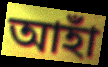
আহাঁ